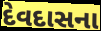
દેવદાસના